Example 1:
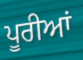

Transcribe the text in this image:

ਪੂਰੀਆਂ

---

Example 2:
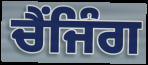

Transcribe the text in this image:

ਚੈਂਜਿੰਗ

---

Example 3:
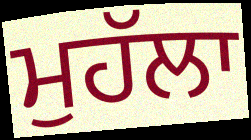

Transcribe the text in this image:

ਮੁਹੱਲਾ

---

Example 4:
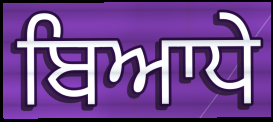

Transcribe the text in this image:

ਬਿਆਧੇ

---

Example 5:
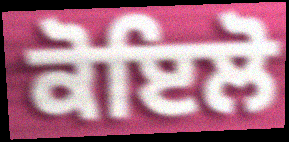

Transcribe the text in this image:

ਕੋਇਲੋ